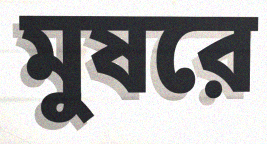
মুষরে